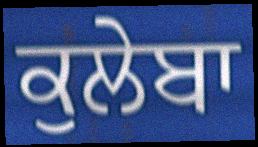
ਕੁਲੇਬਾ